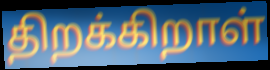
திறக்கிறாள்